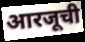
आरजूची